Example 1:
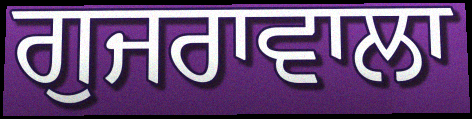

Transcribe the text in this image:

ਗੁਜਰਾਵਾਲਾ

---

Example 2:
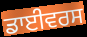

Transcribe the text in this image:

ਡਾਈਵਰਸ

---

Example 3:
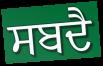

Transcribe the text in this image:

ਸਬਦੈ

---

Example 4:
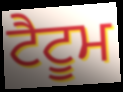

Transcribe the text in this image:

ਟੈਟੂਮ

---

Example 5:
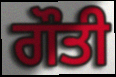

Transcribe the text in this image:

ਗੌਤੀ